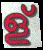
ള്